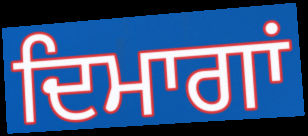
ਦਿਮਾਗਾਂ